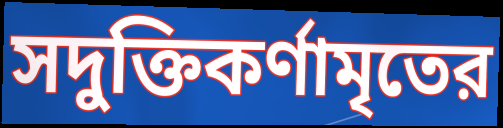
সদুক্তিকর্ণামৃতের